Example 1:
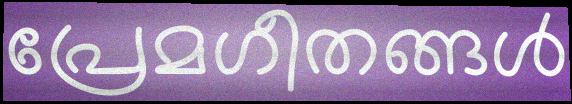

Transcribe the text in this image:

പ്രേമഗീതങ്ങൾ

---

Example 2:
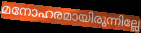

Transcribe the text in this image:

മനോഹരമായിരുന്നില്ലേ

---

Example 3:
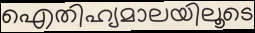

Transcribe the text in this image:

ഐതിഹ്യമാലയിലൂടെ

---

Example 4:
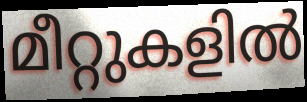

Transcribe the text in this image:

മീറ്റുകളിൽ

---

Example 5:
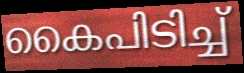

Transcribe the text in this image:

കൈപിടിച്ച്